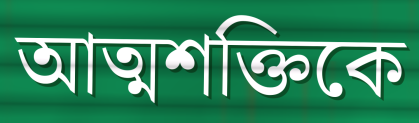
আত্মশক্তিকে